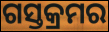
ଗସ୍ତକ୍ରମର